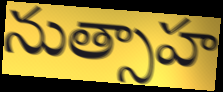
నుత్సాహ